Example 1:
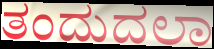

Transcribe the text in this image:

ತಂದುದಲಾ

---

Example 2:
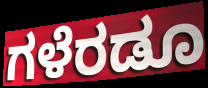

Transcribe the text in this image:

ಗಳೆರಡೂ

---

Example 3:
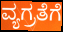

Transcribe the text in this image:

ವ್ಯಗ್ರತೆಗೆ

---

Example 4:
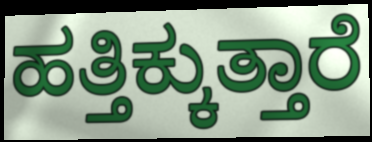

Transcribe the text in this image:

ಹತ್ತಿಕ್ಕುತ್ತಾರೆ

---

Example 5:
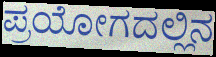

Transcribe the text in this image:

ಪ್ರಯೋಗದಲ್ಲಿನ